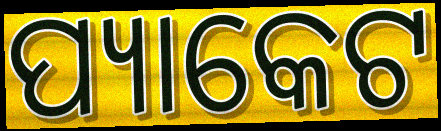
ପ୍ୟାକେଟ